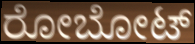
ರೋಬೋಟ್